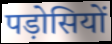
पड़ोसियों